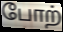
போற்